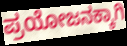
ಪ್ರಯೋಜನಕ್ಕಾಗಿ